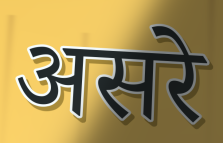
असरे